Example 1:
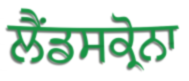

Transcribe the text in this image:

ਲੈਂਡਸਕ੍ਰੋਨਾ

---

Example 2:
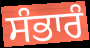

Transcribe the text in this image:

ਸੰਭਾਰੰ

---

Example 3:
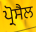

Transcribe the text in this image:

ਪ੍ਰੋਸੈਲ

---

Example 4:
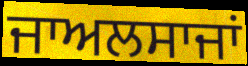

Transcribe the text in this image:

ਜਾਅਲਸਾਜਾਂ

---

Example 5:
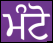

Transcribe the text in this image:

ਮੰਟੋ